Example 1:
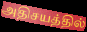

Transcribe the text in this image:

அதிசயத்தில்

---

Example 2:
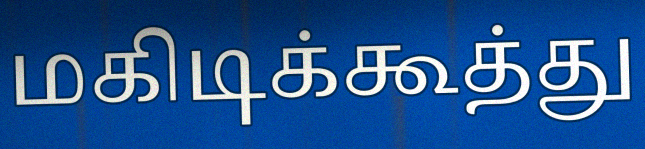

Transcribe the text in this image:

மகிடிக்கூத்து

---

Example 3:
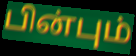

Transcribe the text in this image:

பின்பும்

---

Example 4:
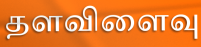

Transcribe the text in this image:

தளவிளைவு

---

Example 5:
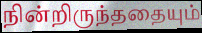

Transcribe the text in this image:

நின்றிருந்ததையும்